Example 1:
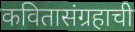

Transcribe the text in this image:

कवितासंग्रहाची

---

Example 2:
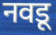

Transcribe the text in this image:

नवडू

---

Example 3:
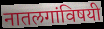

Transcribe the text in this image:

नातलगांविषयी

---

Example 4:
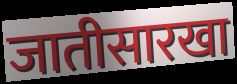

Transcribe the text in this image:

जातीसारखा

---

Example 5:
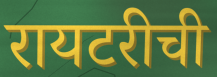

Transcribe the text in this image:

रायटरीची